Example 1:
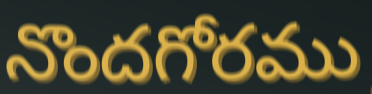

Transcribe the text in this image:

నొందగోరము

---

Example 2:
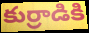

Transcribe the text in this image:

కుర్రాడికి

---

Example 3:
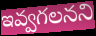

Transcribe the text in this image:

ఇవ్వగలనని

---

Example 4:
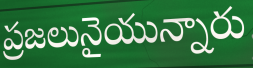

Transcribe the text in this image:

ప్రజలునైయున్నారు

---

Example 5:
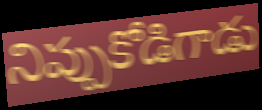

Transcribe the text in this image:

నిప్పుకోడిగాడు